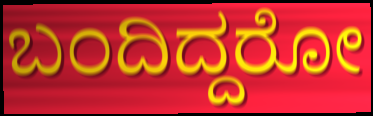
ಬಂದಿದ್ದರೋ